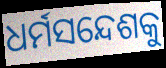
ଧର୍ମସନ୍ଦେଶକୁ